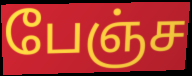
பேஞ்ச